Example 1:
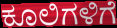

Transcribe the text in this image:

ಕೂಲಿಗಳಿಗೆ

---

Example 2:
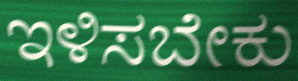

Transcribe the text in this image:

ಇಳಿಸಬೇಕು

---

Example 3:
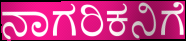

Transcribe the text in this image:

ನಾಗರಿಕನಿಗೆ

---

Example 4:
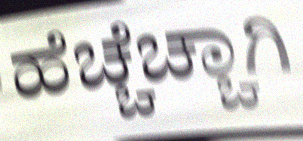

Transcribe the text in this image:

ಹೆಚ್ಚೆಚ್ಚಾಗಿ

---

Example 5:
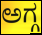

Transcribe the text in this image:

ಅಗ್ಗ